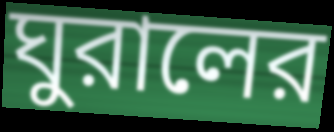
ঘুরালের